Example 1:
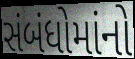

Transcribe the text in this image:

સંબંધોમાંનો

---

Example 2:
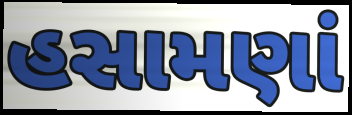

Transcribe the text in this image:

હસામણાં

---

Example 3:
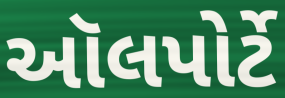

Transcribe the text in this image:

ઑલપોર્ટે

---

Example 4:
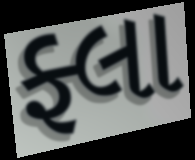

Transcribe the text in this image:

ફ્લા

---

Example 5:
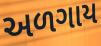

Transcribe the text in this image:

અળગાય